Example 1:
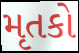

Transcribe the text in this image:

મૃતકો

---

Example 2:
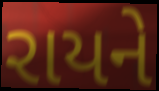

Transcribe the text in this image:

રાયને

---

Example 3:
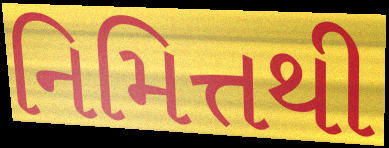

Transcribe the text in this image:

નિમિત્તથી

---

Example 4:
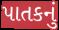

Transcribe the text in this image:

પાતકનું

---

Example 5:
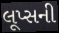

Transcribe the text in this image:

લૂપ્સની